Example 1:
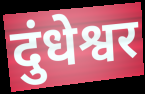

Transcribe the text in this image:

दुंधेश्वर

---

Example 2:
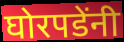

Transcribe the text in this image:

घोरपडेंनी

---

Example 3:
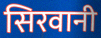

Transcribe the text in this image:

सिरवानी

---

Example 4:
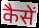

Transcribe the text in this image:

कैसें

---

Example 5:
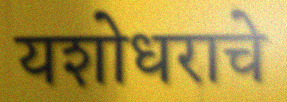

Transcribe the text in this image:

यशोधराचे